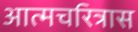
आत्मचरित्रास